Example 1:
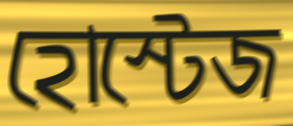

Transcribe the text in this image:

হোস্টেজ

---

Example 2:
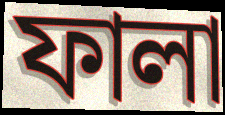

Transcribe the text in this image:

ফালা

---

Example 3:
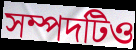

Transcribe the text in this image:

সম্পদটিও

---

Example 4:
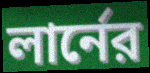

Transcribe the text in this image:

লার্নের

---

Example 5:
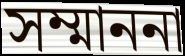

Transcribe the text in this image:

সম্মাননা